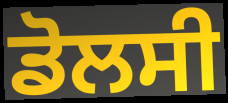
ਡੋਲਸੀ